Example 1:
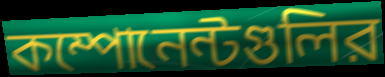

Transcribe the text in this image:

কম্পোনেন্টগুলির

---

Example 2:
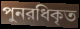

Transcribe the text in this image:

পুনরধিকৃত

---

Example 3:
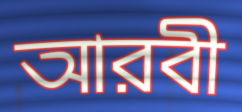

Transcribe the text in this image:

আরবী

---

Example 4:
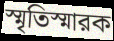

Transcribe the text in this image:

স্মৃতিস্মারক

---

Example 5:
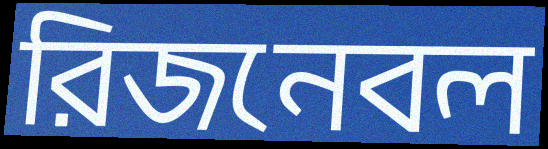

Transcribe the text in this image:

রিজনেবল